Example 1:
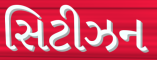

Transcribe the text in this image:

સિટીઝન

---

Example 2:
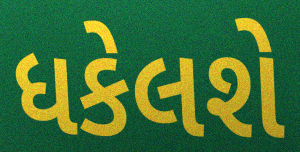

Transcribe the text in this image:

ધકેલશે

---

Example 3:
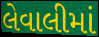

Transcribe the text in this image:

લેવાલીમાં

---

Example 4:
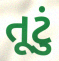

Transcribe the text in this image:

તૂટું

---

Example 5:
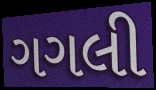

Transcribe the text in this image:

ગગલી